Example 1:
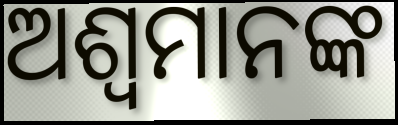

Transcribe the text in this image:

ଅଶ୍ୱମାନଙ୍କ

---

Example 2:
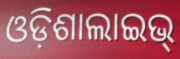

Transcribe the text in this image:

ଓଡ଼ିଶାଲାଇଭ୍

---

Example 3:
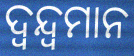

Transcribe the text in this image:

ଦ୍ଵନ୍ଦ୍ଵମାନ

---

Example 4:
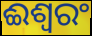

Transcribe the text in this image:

ଈଶ୍ଵରଂ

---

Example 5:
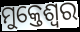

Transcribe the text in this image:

ମୁକ୍ତେଶ୍ଵର